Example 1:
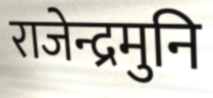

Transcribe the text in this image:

राजेन्द्रमुनि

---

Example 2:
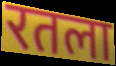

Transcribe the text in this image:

रतला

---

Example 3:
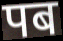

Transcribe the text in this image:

पब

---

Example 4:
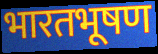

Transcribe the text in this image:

भारतभूषण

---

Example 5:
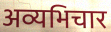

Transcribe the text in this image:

अव्यभिचार